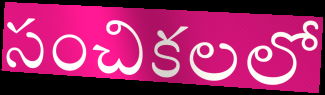
సంచికలలో